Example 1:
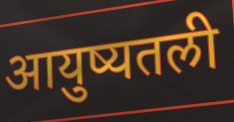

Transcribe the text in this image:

आयुष्यतली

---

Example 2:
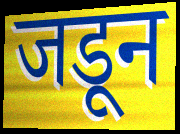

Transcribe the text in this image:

जडून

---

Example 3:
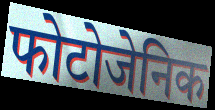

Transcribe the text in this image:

फोटोजेनिक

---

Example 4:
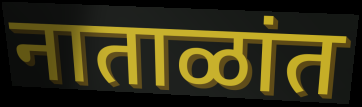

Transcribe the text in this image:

नाताळांत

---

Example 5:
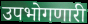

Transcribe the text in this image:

उपभोगणारी